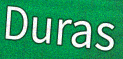
Duras